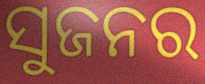
ସୁଜନର